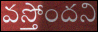
వస్తోందని